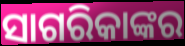
ସାଗରିକାଙ୍କର